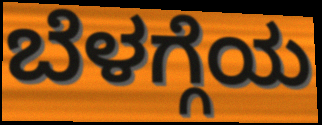
ಬೆಳಗ್ಗೆಯ